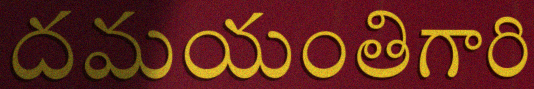
దమయంతిగారి